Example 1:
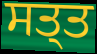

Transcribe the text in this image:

ਸਤ੍ਤ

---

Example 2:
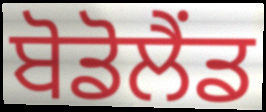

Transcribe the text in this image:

ਬੋਡੋਲੈਂਡ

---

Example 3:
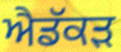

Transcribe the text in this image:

ਐਡੱਕੜ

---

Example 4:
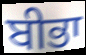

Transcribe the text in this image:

ਬੀਭਾ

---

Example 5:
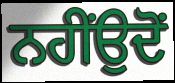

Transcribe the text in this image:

ਨਹੀਂਉਦੋਂ